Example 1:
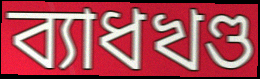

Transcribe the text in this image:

ব্যাধখণ্ড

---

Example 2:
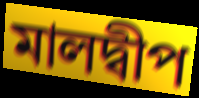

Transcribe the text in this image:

মালদ্বীপ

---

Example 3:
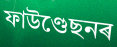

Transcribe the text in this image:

ফাউণ্ডেছনৰ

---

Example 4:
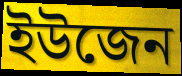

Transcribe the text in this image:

ইউজেন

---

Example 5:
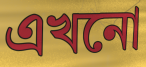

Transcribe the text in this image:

এখনো